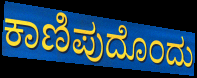
ಕಾಣಿಪುದೊಂದು